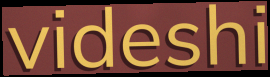
videshi